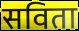
सविता